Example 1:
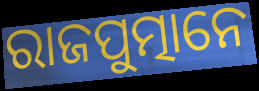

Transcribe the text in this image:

ରାଜପୁତ୍ମାନେ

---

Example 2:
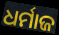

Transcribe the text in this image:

ଧର୍ମାଜ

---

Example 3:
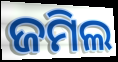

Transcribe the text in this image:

ଜମିଲ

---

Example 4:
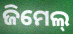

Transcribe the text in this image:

ଜିମେଲ୍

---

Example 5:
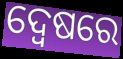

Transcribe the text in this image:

ଦ୍ୱେଷରେ